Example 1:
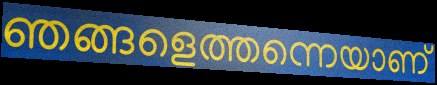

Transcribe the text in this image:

ഞങ്ങളെത്തന്നെയാണ്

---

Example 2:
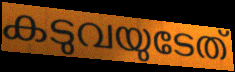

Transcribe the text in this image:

കടുവയുടേത്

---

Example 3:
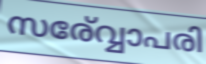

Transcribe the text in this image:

സര്വ്വോപരി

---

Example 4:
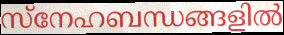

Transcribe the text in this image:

സ്നേഹബന്ധങ്ങളിൽ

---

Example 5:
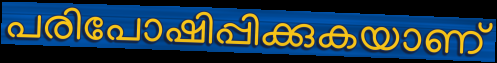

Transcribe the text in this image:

പരിപോഷിപ്പിക്കുകയാണ്